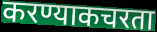
करण्याकचरता